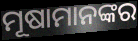
ମୂଷାମାନଙ୍କର